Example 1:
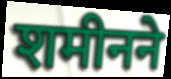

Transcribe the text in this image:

शमीनने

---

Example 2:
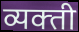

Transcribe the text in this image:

व्यक्‍ती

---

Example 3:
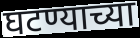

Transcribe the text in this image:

घटण्याच्या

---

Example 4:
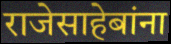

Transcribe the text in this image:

राजेसाहेबांना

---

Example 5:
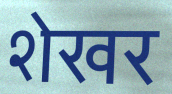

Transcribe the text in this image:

शेखर